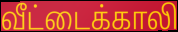
வீட்டைக்காலி